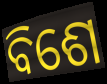
ବିଶେ